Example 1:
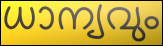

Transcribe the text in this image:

ധാന്യവും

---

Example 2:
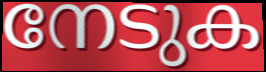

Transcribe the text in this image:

നേടുക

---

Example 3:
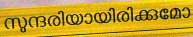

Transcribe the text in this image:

സുന്ദരിയായിരിക്കുമോ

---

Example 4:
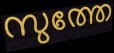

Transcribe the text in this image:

സുത്തേ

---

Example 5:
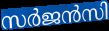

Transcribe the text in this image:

സർജൻസി